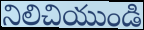
నిలిచియుండి